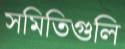
সমিতিগুলি